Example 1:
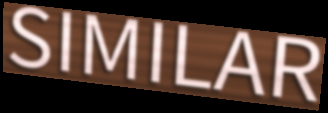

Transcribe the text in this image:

SIMILAR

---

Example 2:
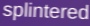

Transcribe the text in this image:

splintered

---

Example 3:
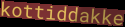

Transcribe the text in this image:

kottiddakke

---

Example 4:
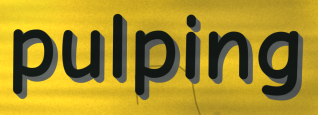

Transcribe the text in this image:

pulping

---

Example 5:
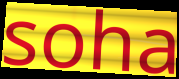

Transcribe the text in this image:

soha